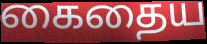
கைதைய